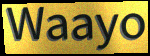
Waayo